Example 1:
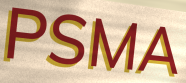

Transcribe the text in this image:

PSMA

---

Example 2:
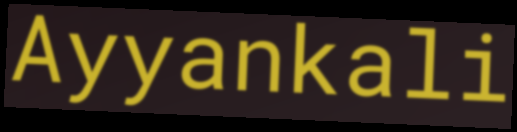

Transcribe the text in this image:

Ayyankali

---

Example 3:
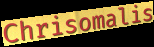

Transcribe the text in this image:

Chrisomalis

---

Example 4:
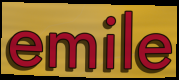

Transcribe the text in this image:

emile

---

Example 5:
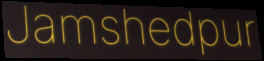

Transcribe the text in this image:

Jamshedpur